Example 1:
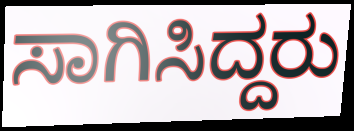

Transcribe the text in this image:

ಸಾಗಿಸಿದ್ದರು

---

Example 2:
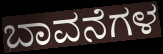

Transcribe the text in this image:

ಬಾವನೆಗಳ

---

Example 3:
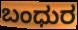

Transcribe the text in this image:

ಬಂಧುರ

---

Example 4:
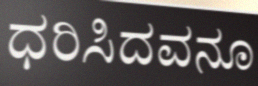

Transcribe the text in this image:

ಧರಿಸಿದವನೂ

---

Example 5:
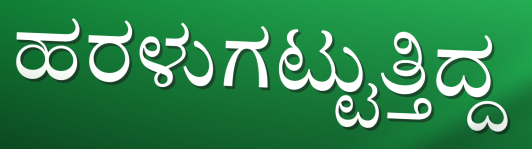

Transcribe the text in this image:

ಹರಳುಗಟ್ಟುತ್ತಿದ್ದ